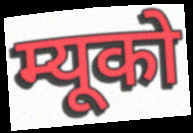
म्यूको